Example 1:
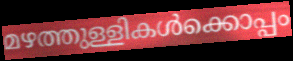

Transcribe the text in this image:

മഴത്തുള്ളികൾക്കൊപ്പം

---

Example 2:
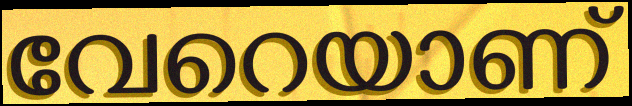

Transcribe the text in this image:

വേറെയാണ്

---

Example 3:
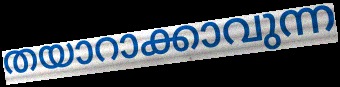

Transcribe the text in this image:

തയാറാക്കാവുന്ന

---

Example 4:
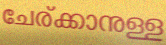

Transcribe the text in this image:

ചേര്ക്കാനുള്ള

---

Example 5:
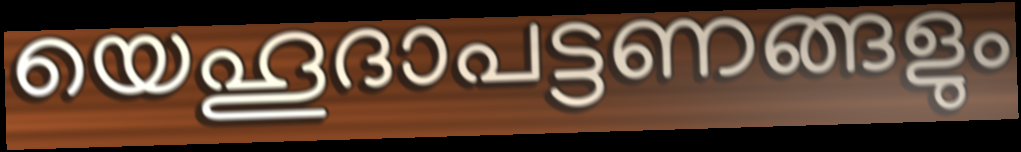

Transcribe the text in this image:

യെഹൂദാപട്ടണങ്ങളും